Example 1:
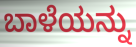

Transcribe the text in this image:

ಬಾಳೆಯನ್ನು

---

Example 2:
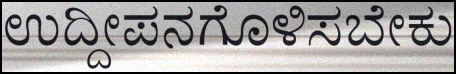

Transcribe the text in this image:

ಉದ್ದೀಪನಗೊಳಿಸಬೇಕು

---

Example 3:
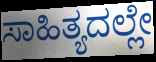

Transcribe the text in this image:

ಸಾಹಿತ್ಯದಲ್ಲೇ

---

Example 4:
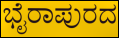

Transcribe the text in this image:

ಭೈರಾಪುರದ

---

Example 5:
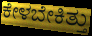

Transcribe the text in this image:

ಕೇಳಬೇಕಿತ್ತು